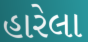
હારેલા